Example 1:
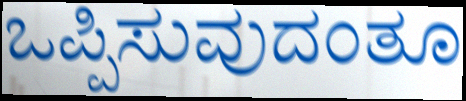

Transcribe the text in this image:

ಒಪ್ಪಿಸುವುದಂತೂ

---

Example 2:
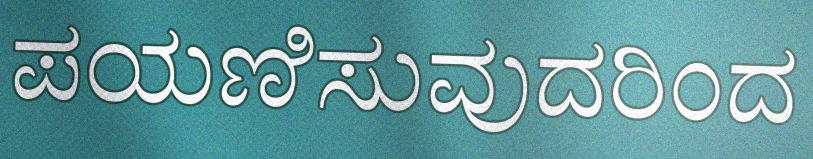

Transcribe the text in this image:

ಪಯಣಿಸುವುದರಿಂದ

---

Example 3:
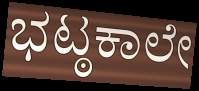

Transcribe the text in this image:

ಭಟ್ಠಕಾಲೇ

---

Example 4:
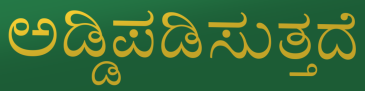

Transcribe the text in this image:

ಅಡ್ಡಿಪಡಿಸುತ್ತದೆ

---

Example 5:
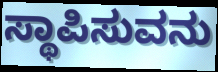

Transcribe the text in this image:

ಸ್ಥಾಪಿಸುವನು